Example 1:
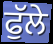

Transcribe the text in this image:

ਫੁੱਲੇ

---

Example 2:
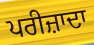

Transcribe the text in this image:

ਪਰੀਜ਼ਾਦਾ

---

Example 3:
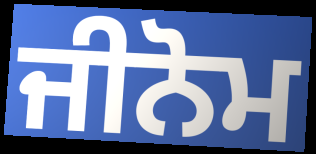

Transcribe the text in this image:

ਜੀਨੋਮ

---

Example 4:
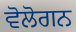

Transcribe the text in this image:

ਵੋਲੋਗਨ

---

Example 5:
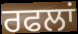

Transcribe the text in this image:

ਰਫਲਾਂ